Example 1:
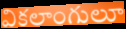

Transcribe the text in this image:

వికలాంగులూ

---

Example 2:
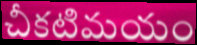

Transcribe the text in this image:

చీకటిమయం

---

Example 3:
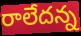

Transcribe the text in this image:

రాలేదన్న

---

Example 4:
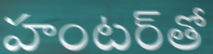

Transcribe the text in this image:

హంటర్‌తో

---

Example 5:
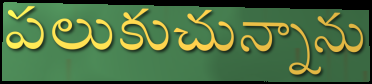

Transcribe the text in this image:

పలుకుచున్నాను